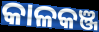
କାଳକଞ୍ଜ